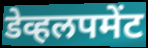
डेव्हलपमेंट